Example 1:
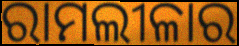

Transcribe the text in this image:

ରାମଲୀଳାର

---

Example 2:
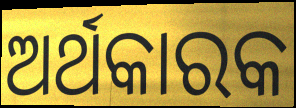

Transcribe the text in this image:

ଅର୍ଥକାରକ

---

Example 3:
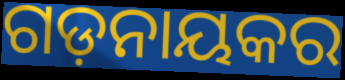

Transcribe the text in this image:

ଗଡ଼ନାୟକର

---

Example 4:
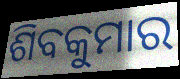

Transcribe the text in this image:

ଶିବକୁମାର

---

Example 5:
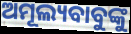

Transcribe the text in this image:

ଅମୂଲ୍ୟବାବୁଙ୍କୁ